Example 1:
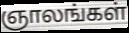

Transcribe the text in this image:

ஞாலங்கள்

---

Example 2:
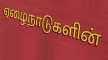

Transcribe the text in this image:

ஏழைநாடுகளின்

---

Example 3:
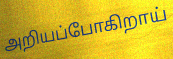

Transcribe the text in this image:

அறியப்போகிறாய்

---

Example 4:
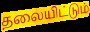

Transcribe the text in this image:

தலையிட்டும்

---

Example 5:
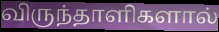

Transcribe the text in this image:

விருந்தாளிகளால்